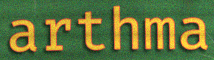
arthma